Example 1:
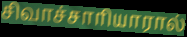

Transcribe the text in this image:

சிவாச்சாரியாரால்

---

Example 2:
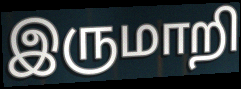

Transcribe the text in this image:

இருமாறி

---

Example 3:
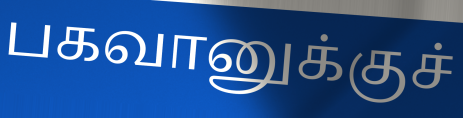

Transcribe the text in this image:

பகவானுக்குச்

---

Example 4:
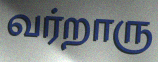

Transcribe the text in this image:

வர்றாரு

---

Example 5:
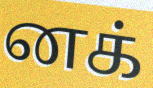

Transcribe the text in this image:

னக்